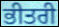
ਭੀਤਰੀ